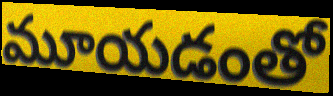
మూయడంతో